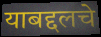
याबद्दलचे